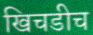
खिचडीच